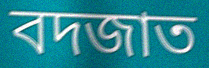
বদজাত